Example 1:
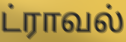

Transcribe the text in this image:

ட்ராவல்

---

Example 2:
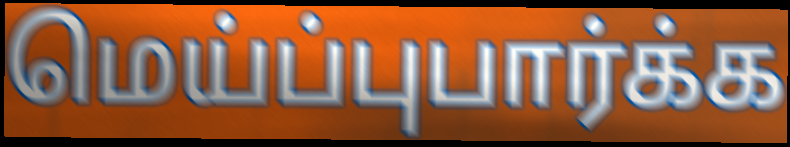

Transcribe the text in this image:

மெய்ப்புபார்க்க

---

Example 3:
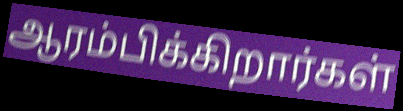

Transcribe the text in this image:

ஆரம்பிக்கிறார்கள்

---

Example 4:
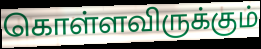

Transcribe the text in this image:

கொள்ளவிருக்கும்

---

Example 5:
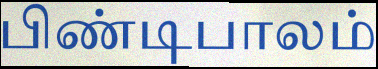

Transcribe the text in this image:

பிண்டிபாலம்